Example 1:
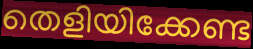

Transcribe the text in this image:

തെളിയിക്കേണ്ട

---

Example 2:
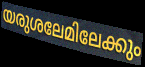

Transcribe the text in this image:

യരുശലേമിലേക്കും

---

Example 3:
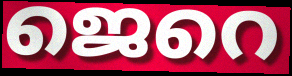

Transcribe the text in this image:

ജെറെ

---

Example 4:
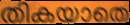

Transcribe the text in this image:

തികയാതെ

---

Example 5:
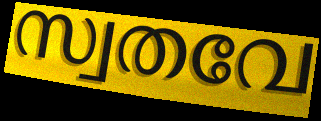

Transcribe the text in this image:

സ്വതവേ